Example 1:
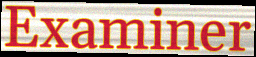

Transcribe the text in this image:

Examiner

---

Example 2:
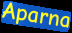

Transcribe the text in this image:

Aparna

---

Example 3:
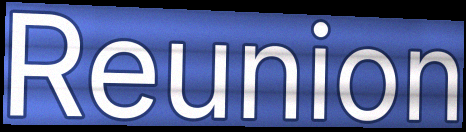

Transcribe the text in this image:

Reunion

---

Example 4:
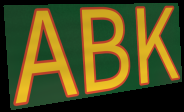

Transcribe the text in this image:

ABK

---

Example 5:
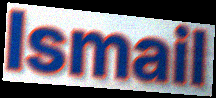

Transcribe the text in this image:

Ismail